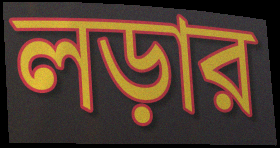
লড়ার